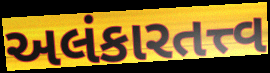
અલંકારતત્ત્વ